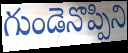
గుండెనొప్పిని